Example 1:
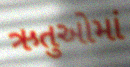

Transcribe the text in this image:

ઋતુઓમાં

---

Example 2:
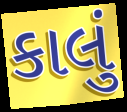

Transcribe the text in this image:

કાલું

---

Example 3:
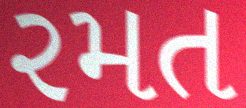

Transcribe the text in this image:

રમત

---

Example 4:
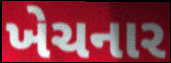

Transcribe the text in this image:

ખેચનાર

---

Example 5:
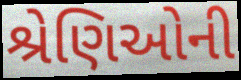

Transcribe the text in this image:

શ્રેણિઓની